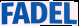
FADEL